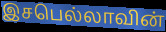
இசபெல்லாவின்